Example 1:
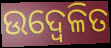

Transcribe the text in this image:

ଉଦ୍ବେଳିତ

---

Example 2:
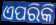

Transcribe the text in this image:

ଏପରିକି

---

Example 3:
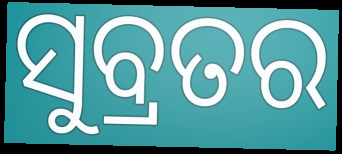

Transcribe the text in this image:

ସୁବ୍ରତର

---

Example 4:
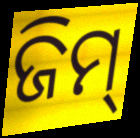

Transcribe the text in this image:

ଜିମ୍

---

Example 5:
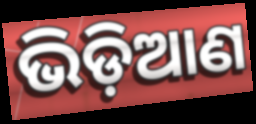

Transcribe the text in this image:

ଭିଡ଼ିଆଣ